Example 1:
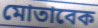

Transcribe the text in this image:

মোতাবেক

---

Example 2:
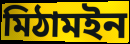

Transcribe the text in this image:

মিঠামইন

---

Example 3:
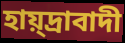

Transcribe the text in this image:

হায়্দ্রাবাদী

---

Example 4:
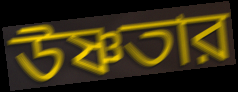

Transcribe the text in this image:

উষ্ণতার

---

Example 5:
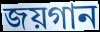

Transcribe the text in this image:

জয়গান